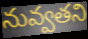
నువ్వతని